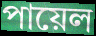
পায়েল